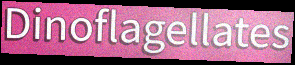
Dinoflagellates